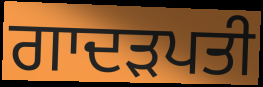
ਗਾਦੜਪਤੀ